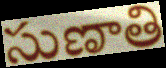
సుణాతి